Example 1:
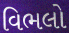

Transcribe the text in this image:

વિભલો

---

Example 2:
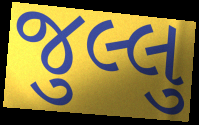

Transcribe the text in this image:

જુલ્લુ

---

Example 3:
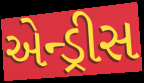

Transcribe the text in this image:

એન્ડ્રીસ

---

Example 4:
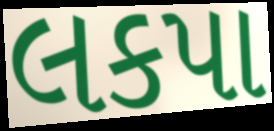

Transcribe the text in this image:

લકપા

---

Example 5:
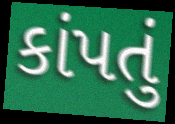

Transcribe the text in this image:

કાંપતું